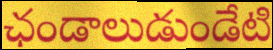
ఛండాలుడుండేటి